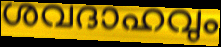
ശവദാഹവും